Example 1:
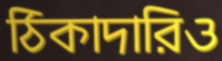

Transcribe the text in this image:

ঠিকাদারিও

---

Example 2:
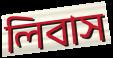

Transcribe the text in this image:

লিবাস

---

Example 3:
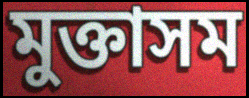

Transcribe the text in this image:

মুক্তাসম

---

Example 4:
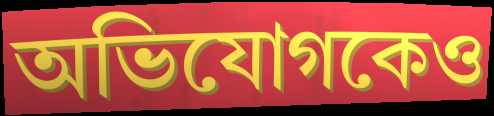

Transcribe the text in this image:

অভিযোগকেও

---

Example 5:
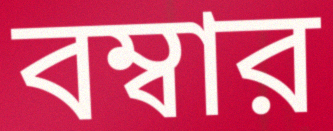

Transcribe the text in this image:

বম্বার